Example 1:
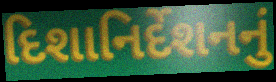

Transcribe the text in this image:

દિશાનિર્દેશનનું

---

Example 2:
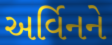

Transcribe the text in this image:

અર્વિનને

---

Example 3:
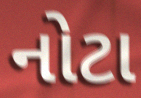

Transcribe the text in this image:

નોટા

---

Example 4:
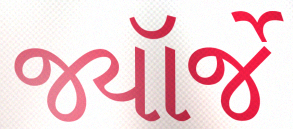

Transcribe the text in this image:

જ્યૉર્જે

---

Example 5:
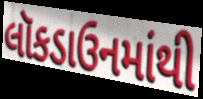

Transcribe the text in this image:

લૉકડાઉનમાંથી